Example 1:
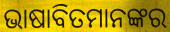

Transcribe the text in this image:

ଭାଷାବିତମାନଙ୍କର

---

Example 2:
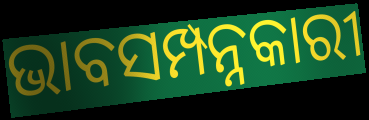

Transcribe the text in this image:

ଭାବସମ୍ପନ୍ନକାରୀ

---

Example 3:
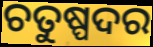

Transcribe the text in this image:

ଚତୁଷ୍ପଦର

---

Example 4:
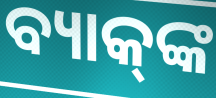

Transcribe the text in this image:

ବ୍ୟାକ୍‍ଙ୍କ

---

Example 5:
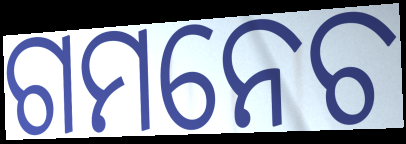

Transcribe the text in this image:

ଗମନେଚ